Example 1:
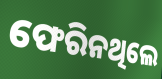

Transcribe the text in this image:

ଫେରିନଥିଲେ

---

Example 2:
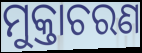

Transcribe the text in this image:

ମୁକ୍ତାଚରଣ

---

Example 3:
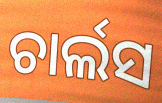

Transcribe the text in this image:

ଚାର୍ଲସ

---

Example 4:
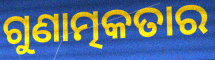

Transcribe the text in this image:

ଗୁଣାତ୍ମକତାର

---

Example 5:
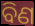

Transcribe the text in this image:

ବିଣ